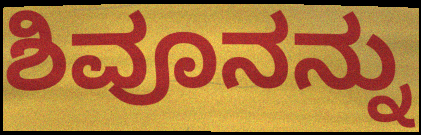
ಶಿವೂನನ್ನು